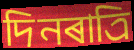
দিনৰাত্ৰি